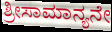
ಶ್ರೀಸಾಮಾನ್ಯನೇ